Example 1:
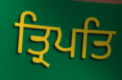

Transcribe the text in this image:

ਤ੍ਰਿਪਤਿ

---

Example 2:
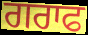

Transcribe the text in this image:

ਗਰਾਫ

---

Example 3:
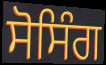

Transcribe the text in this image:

ਸੋਸਿੰਗ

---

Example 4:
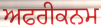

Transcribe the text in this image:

ਅਫਰੀਕਨਮ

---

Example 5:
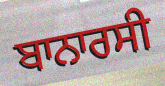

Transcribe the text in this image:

ਬਾਨਾਰਸੀ